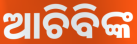
ଆଚିବିଙ୍କ